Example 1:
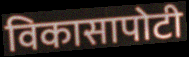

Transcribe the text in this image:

विकासापोटी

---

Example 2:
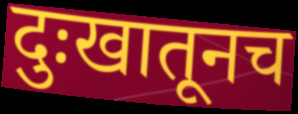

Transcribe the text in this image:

दुःखातूनच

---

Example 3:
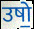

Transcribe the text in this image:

उषो॒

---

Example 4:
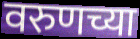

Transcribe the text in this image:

वरुणच्या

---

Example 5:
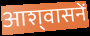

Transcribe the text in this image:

आश्वासनें